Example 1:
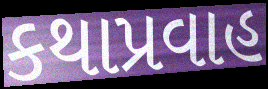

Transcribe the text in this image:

કથાપ્રવાહ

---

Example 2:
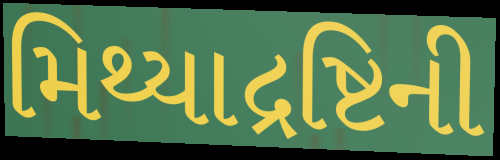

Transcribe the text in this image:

મિથ્યાદ્રષ્ટિની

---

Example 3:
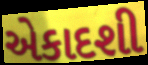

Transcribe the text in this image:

એકાદશી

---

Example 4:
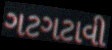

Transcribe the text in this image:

ગટગટાવી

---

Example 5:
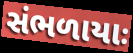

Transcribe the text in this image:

સંભળાયાઃ